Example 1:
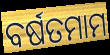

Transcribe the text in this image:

ବର୍ଷତମାମ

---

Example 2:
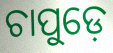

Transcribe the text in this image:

ଚାପୁଡ଼େ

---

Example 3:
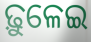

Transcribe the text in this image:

ଢ଼ୁଳେଇ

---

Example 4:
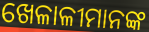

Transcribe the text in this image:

ଖେଳାଳୀମାନଙ୍କ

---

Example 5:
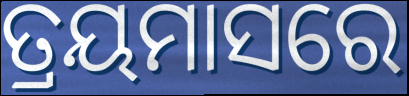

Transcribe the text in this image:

ତ୍ରୟମାସରେ